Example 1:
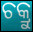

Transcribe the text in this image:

ଚକ୍ରୁ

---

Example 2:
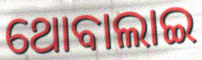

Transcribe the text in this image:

ଥୋବାଲାଇ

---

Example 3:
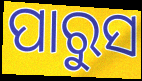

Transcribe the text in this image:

ପାରୁସ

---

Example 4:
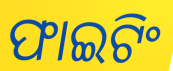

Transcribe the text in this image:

ଫାଇଟିଂ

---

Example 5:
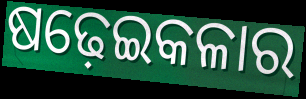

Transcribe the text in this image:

ଷଢ଼େଇକଳାର